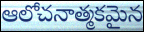
ఆలోచనాత్మకమైన